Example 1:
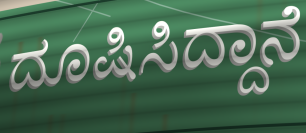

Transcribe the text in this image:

ದೂಷಿಸಿದ್ದಾನೆ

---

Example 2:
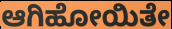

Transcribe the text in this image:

ಆಗಿಹೋಯಿತೇ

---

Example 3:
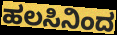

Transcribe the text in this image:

ಹಲಸಿನಿಂದ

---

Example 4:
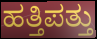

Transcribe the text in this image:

ಹತ್ತಿಪತ್ತು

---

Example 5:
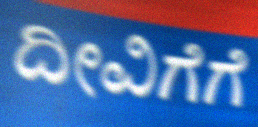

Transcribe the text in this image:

ದೀವಿಗೆಗೆ